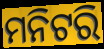
ମନିଟରି